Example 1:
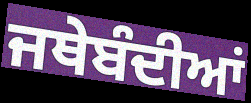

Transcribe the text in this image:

ਜਥੇਬੰਦੀਆਂ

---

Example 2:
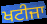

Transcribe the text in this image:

ਖਟੀਜਾ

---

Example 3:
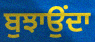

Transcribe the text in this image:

ਬੁਝਾਉਂਦਾ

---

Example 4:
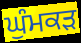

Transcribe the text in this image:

ਘੁੰਮਕੜ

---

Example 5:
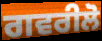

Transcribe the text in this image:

ਗਵਰੀਲੋ